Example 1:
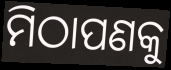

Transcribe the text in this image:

ମିଠାପଣକୁ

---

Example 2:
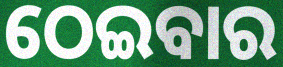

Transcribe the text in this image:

ଠେଇବାର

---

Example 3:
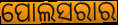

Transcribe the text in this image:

ପୋଲସରାର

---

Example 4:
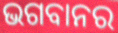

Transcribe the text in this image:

ଭଗବାନର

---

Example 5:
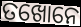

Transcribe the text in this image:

ତଖୋନେ